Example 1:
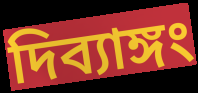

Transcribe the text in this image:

দিব্যাঙ্গং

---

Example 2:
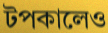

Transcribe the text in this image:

টপকালেও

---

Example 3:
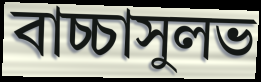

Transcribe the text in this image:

বাচ্চাসুলভ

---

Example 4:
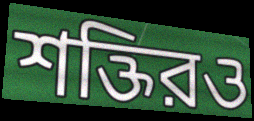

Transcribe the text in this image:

শক্তিরও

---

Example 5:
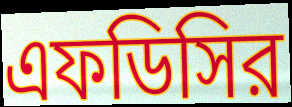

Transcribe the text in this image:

এফডিসির